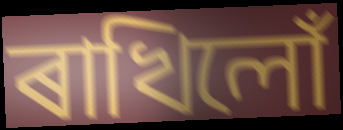
ৰাখিলোঁ